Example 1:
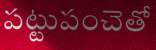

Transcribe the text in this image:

పట్టుపంచెతో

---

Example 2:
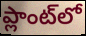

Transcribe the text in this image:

ప్లాంట్‌లో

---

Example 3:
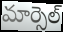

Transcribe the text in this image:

మార్సెల్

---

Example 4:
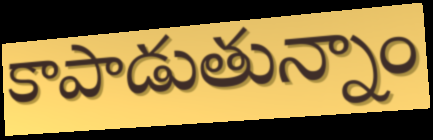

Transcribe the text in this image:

కాపాడుతున్నాం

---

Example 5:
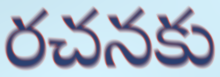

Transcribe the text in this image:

రచనకు